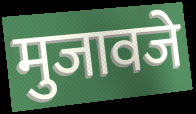
मुजावजे